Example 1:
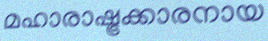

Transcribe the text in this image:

മഹാരാഷ്ട്രക്കാരനായ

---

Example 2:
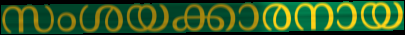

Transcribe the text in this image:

സംശയക്കാരനായ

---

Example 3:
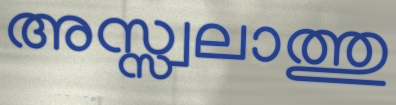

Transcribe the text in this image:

അസ്സ്വലാത്തു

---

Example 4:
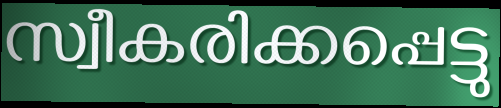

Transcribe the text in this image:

സ്വീകരിക്കപ്പെട്ടു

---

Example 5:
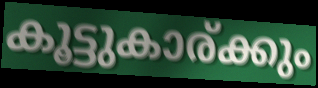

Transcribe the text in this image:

കൂട്ടുകാര്ക്കും